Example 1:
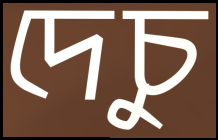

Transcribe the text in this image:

দেচু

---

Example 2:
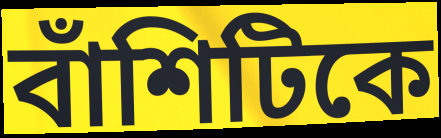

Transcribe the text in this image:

বাঁশিটিকে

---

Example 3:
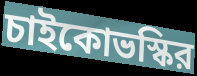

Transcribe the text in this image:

চাইকোভস্কির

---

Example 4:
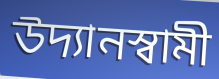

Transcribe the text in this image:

উদ্যানস্বামী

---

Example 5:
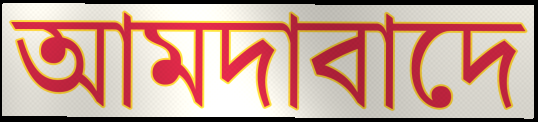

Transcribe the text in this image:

আমদাবাদে